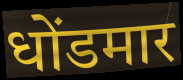
धोंडमार